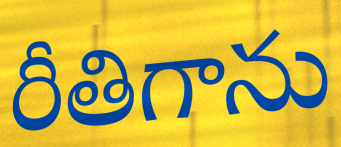
రీతిగాను